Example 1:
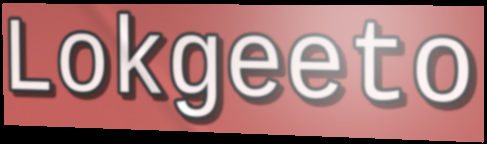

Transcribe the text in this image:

Lokgeeto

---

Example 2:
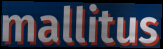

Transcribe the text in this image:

mallitus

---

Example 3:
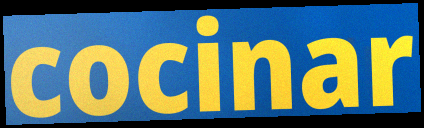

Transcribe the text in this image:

cocinar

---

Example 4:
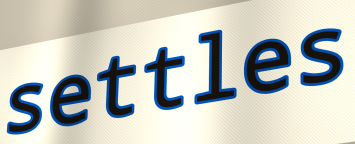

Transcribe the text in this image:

settles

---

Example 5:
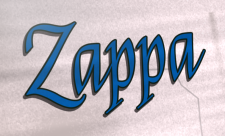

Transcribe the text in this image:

Zappa